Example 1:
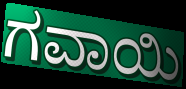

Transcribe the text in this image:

ಗವಾಯಿ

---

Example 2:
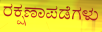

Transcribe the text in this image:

ರಕ್ಷಣಾಪಡೆಗಳು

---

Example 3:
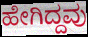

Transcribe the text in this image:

ಹೇಗಿದ್ದವು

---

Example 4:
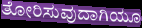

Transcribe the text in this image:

ತೋರಿಸುವುದಾಗಿಯೂ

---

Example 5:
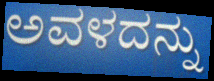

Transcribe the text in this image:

ಅವಳದನ್ನು